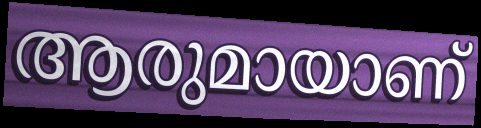
ആരുമായാണ്